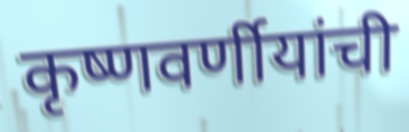
कृष्णवर्णीयांची